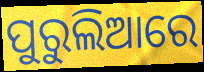
ପୁରୁଲିଆରେ